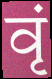
वृं